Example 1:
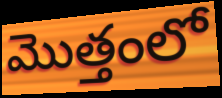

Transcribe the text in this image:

మొత్తంలో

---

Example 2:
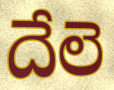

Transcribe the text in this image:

దేలె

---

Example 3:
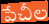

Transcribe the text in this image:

పేచీల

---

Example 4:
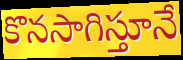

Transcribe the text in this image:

కొనసాగిస్తూనే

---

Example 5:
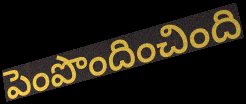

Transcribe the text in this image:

పెంపొందించింది